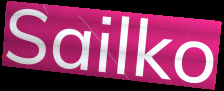
Sailko